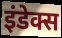
इंडेक्स